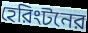
হেরিংটনের